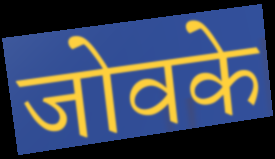
जोवके